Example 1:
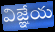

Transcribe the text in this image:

విజ్ఞేయ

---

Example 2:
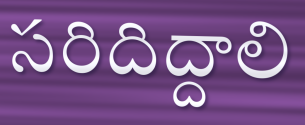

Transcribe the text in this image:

సరిదిద్దాలి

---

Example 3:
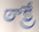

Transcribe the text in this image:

ఠాక్రే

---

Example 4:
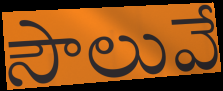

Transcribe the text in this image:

సౌలువే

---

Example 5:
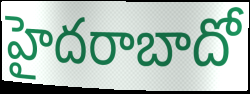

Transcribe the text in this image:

హైదరాబాదో